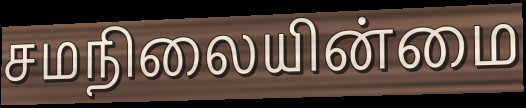
சமநிலையின்மை